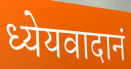
ध्येयवादानं